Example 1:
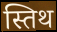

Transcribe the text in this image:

स्तिथ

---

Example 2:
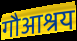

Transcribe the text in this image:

गौआश्रय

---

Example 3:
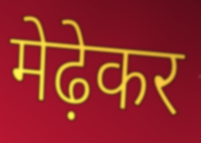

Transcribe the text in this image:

मेढ़ेकर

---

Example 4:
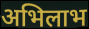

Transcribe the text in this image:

अभिलाभ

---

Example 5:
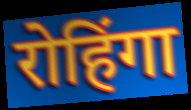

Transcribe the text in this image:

रोहिंगा